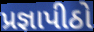
પ્રજ્ઞાપીઠો